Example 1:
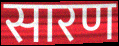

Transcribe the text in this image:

सारण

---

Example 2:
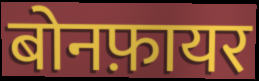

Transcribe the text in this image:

बोनफ़ायर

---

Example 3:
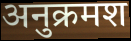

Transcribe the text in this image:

अनुक्रमश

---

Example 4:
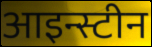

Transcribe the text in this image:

आइन्स्टीन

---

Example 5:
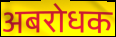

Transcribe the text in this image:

अबरोधक